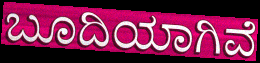
ಬೂದಿಯಾಗಿವೆ